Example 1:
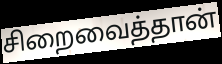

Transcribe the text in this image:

சிறைவைத்தான்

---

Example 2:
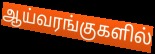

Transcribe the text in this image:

ஆய்வரங்குகளில்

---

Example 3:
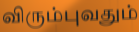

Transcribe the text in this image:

விரும்புவதும்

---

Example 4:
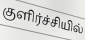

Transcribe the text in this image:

குளிர்ச்சியில்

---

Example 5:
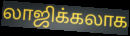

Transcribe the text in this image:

லாஜிக்கலாக